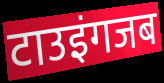
टाउइंगजब